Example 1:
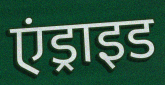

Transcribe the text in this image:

एंड्राइड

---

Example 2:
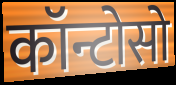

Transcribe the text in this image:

कॉन्टोसो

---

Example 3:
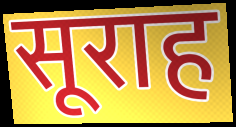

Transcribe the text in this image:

सूराह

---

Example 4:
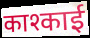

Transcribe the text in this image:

काश्काई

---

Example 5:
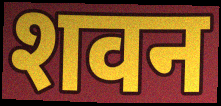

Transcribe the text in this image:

शवन